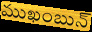
ముఖంబున్